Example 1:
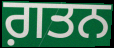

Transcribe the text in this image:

ਗ਼ਤਨ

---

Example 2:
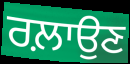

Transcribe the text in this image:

ਰਲ਼ਾਉਣ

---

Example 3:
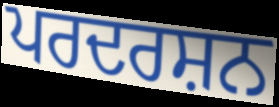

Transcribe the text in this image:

ਪਰਦਰਸ਼ਨ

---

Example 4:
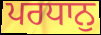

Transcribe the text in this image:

ਪਰਧਾਨੁ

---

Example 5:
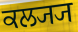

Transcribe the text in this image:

ਕਲ੍ਯ੍ਯ